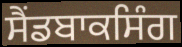
ਸੈਂਡਬਾਕਸਿੰਗ